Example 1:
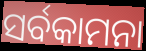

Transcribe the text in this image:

ସର୍ବକାମନା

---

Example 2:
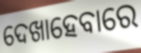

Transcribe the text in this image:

ଦେଖାହେବାରେ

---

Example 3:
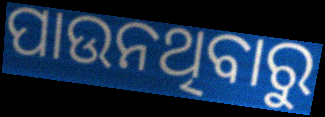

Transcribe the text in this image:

ପାଉନଥିବାରୁ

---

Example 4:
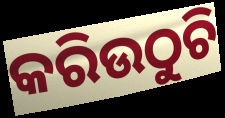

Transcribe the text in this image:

କରିଉଠୁଚି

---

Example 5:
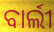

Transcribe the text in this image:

ବାର୍ଲୀ